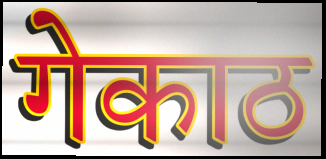
गेकाठ